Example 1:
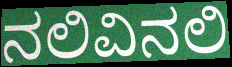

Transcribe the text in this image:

ನಲಿವಿನಲಿ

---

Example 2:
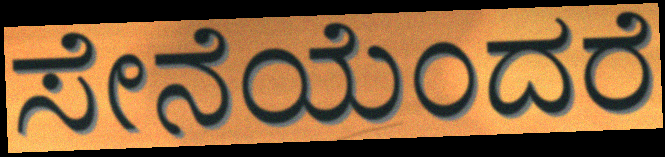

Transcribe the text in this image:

ಸೇನೆಯೆಂದರೆ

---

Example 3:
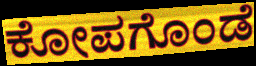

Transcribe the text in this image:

ಕೋಪಗೊಂಡೆ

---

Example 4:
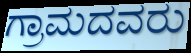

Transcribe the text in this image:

ಗ್ರಾಮದವರು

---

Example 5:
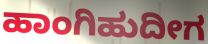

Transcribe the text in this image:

ಹಾಂಗಿಹುದೀಗ